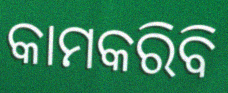
କାମକରିବି